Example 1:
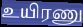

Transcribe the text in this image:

உயிரணு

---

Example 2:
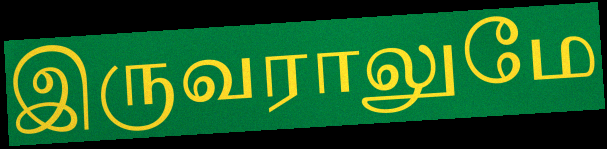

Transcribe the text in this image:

இருவராலுமே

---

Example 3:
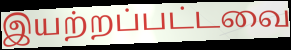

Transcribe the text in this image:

இயற்றப்பட்டவை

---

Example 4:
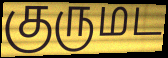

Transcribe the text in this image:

குருமட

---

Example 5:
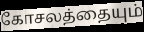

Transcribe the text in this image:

கோசலத்தையும்